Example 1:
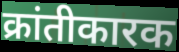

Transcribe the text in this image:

क्रांतीकारक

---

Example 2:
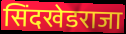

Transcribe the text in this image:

सिंदखेडराजा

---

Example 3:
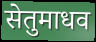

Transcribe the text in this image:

सेतुमाधव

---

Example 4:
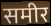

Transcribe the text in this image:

समीर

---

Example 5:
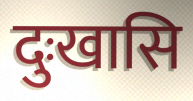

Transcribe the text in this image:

दुःखासि